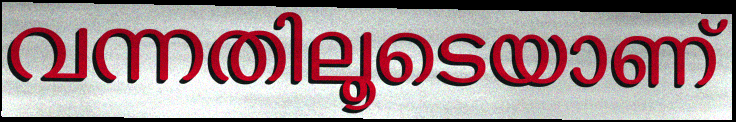
വന്നതിലൂടെയാണ്